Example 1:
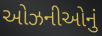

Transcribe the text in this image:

ઓઝનીઓનું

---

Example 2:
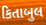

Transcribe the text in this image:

કિતાબુલ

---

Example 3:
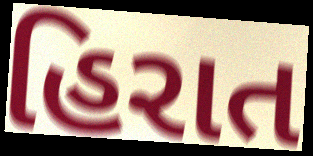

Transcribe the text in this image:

હિરાત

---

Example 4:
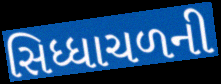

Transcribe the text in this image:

સિધ્ધાચળની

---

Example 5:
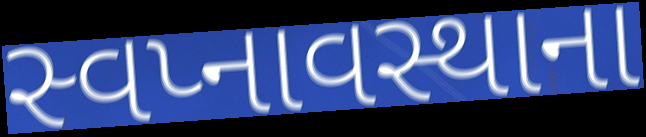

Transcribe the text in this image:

સ્વપ્નાવસ્થાના